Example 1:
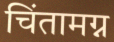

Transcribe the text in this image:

चिंतामग्न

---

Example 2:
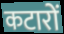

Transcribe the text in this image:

कटारों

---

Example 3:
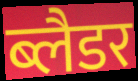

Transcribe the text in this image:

ब्लैडर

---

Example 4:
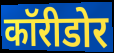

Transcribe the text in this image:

कॉरीडोर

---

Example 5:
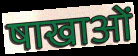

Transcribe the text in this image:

षाखाओं